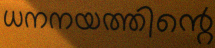
ധനനയത്തിന്റെ